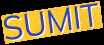
SUMIT